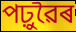
পঢ়ুৱৈৰ